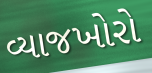
વ્યાજખોરો